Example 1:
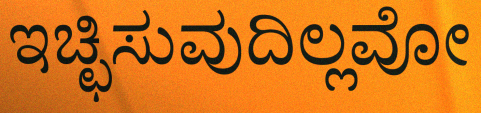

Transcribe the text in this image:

ಇಚ್ಛಿಸುವುದಿಲ್ಲವೋ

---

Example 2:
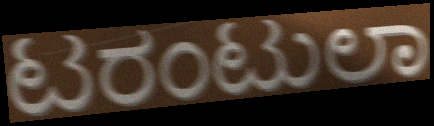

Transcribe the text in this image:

ಟರಂಟುಲಾ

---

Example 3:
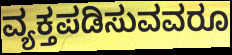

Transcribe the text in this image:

ವ್ಯಕ್ತಪಡಿಸುವವರೂ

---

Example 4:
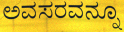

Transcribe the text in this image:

ಅವಸರವನ್ನೂ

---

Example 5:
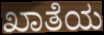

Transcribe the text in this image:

ಖಾತೆಯ